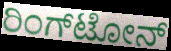
ರಿಂಗ್‌ಟೋನ್